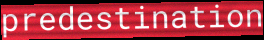
predestination